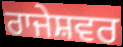
ਰਾਜੇਸ਼ਵਰ